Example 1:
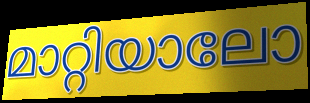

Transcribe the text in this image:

മാറ്റിയാലോ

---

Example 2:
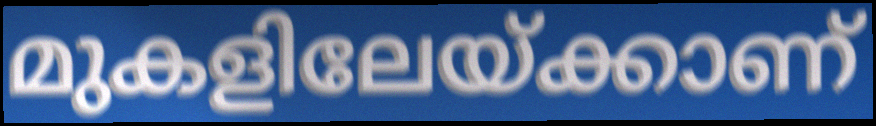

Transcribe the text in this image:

മുകളിലേയ്ക്കാണ്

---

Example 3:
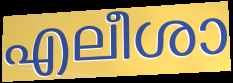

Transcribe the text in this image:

എലീശാ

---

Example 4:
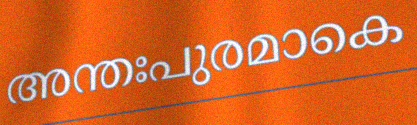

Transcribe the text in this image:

അന്തഃപുരമാകെ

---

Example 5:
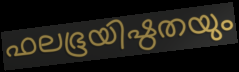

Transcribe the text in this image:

ഫലഭൂയിഷ്ഠതയും